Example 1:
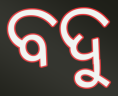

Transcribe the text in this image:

ବଦୁ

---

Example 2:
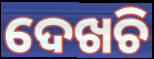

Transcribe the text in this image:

ଦେଖଚି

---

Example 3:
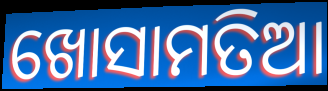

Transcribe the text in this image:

ଖୋସାମତିଆ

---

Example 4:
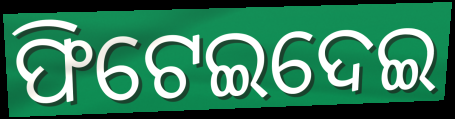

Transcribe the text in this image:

ଫିଟେଇଦେଇ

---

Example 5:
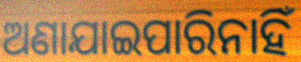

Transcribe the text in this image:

ଅଣାଯାଇପାରିନାହିଁ